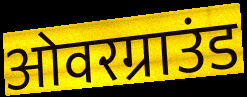
ओवरग्राउंड